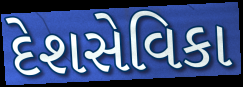
દેશસેવિકા